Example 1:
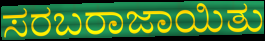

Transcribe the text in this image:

ಸರಬರಾಜಾಯಿತು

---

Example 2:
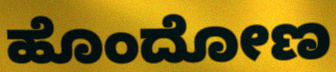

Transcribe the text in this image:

ಹೊಂದೋಣ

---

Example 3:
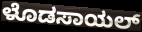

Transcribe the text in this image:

ಳೊಡಸಾಯಲ್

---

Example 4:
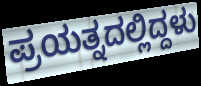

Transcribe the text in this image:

ಪ್ರಯತ್ನದಲ್ಲಿದ್ದಳು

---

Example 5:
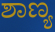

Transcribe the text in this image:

ಶಾಣ್ಯ